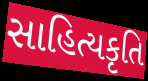
સાહિત્યકૃતિ